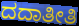
ದದಾತೀತಿ